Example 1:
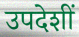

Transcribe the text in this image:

उपदेशीं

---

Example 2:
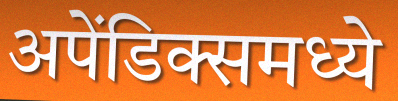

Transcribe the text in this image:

अपेंडिक्समध्ये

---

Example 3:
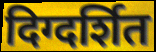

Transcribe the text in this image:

दिग्दर्शित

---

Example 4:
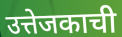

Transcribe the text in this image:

उत्तेजकाची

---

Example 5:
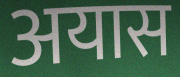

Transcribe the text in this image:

अयास